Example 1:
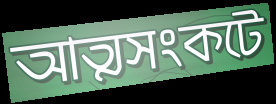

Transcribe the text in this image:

আত্মসংকটে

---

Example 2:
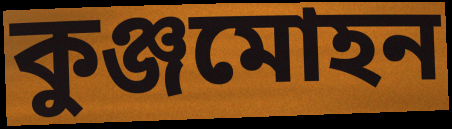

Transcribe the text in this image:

কুঞ্জমোহন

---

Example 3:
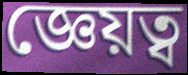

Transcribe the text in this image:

জ্ঞেয়ত্ব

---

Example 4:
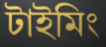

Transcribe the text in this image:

টাইমিং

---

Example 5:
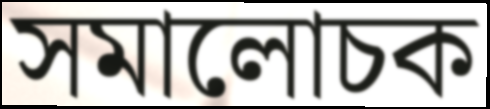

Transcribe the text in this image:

সমালোচক